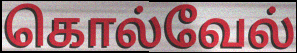
கொல்வேல்